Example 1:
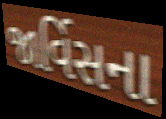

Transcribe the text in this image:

જાર્વિસના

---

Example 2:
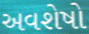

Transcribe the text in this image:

અવશેષો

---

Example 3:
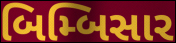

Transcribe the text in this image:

બિમ્બિસાર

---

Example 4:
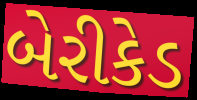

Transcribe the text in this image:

બેરીકેડ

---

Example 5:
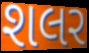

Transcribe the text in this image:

શલર